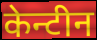
केन्टीन